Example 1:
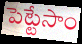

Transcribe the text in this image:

పెట్టేసాం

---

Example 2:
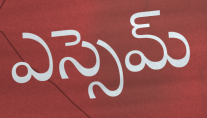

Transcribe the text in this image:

ఎస్సెమ్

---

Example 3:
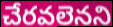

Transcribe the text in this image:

చేరవలెనని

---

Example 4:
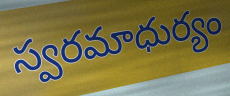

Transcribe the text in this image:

స్వరమాధుర్యం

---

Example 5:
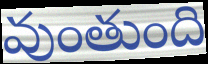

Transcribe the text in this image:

వుంతుంది